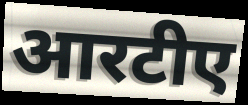
आरटीए